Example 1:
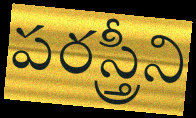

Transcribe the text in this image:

పరస్త్రీని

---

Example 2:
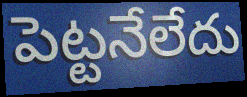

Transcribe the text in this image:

పెట్టనేలేదు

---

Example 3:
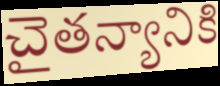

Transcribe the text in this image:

చైతన్యానికి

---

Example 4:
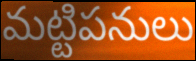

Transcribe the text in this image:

మట్టిపనులు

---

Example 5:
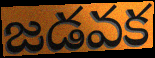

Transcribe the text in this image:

జడవక